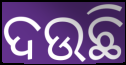
ଦଉଛି